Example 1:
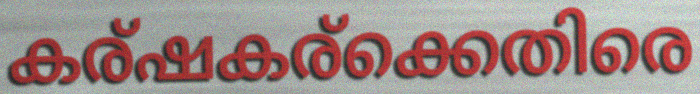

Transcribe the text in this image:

കര്ഷകര്ക്കെതിരെ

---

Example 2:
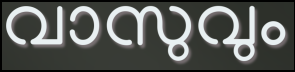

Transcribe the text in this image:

വാസുവും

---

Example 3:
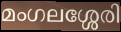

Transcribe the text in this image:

മംഗലശ്ശേരി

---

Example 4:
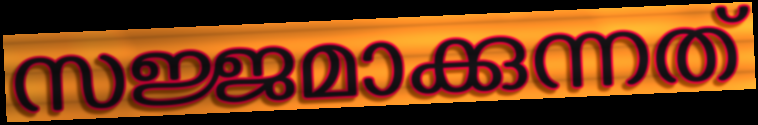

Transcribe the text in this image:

സജ്ജമാക്കുന്നത്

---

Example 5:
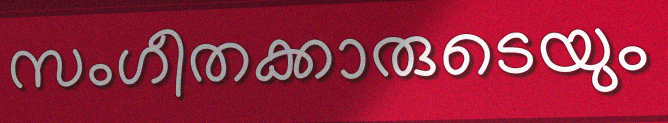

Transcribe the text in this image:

സംഗീതക്കാരുടെയും